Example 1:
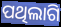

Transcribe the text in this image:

ପଥିଲାଗି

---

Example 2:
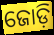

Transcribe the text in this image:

ଜୋଡ଼ି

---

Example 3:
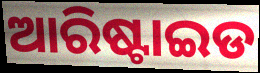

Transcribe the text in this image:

ଆରିଷ୍ଟାଇଡ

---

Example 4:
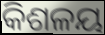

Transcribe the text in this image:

କିଶଳୟ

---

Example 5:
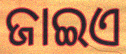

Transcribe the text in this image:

ଜାଇଏ